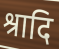
श्रादि